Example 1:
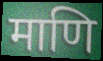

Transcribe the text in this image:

माणि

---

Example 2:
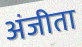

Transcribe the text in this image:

अंजीता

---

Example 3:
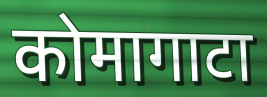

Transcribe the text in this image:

कोमागाटा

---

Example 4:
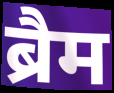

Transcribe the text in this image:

ब्रैम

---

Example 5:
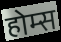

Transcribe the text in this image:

होम्स